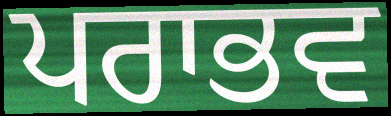
ਪਰਾਭਵ